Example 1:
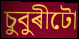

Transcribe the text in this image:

চুবুৰীটো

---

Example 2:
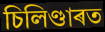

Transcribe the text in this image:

চিলিণ্ডাৰত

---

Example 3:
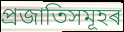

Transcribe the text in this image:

প্ৰজাতিসমূহৰ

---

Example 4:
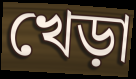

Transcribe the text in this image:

খেড়া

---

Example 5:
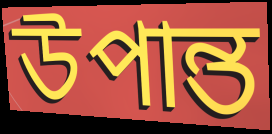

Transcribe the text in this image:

উপান্ত